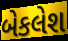
બેકલેશ